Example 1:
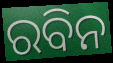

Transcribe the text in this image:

ରବିନ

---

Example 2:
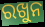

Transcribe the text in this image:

ରଖୁନ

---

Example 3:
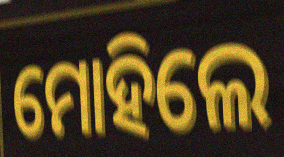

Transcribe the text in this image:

ମୋହିଲେ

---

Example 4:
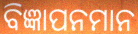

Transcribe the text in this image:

ବିଜ୍ଞାପନମାନ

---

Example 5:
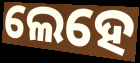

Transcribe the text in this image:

ଲେହେ